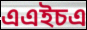
এএইচএ